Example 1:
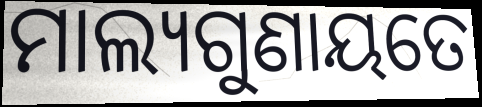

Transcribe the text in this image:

ମାଲ୍ୟଗୁଣାୟତେ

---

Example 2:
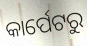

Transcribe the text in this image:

କାର୍ପେଟରୁ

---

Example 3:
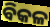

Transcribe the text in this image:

ବିକଳ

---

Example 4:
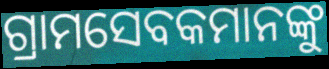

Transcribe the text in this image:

ଗ୍ରାମସେବକମାନଙ୍କୁ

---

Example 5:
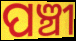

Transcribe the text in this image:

ପଞ୍ଚୀ